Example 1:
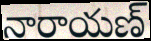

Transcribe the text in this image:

నారాయణ్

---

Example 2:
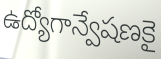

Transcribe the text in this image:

ఉద్యోగాన్వేషణకై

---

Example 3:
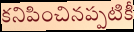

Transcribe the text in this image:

కనిపించినప్పటికీ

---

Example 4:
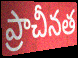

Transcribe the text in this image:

ప్రాచీనత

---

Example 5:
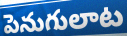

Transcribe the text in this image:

పెనుగులాట